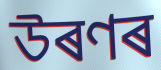
উৰণৰ